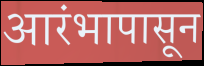
आरंभापासून